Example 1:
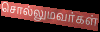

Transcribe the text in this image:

சொல்லுமவர்கள்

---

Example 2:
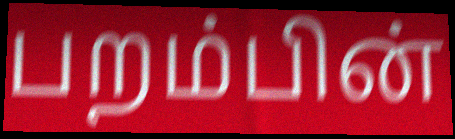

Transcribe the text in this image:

பறம்பின்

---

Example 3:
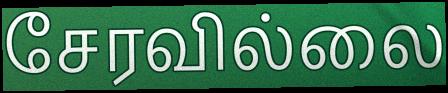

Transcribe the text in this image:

சேரவில்லை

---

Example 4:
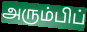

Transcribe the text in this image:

அரும்பிப்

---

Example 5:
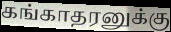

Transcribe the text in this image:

கங்காதரனுக்கு